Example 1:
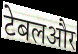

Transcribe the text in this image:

टेबलऔर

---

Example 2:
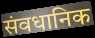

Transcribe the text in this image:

संवधानिक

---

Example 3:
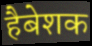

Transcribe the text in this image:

हैबेशक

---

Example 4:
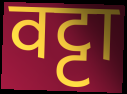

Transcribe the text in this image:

वट्टा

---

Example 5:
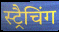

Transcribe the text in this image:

स्ट्रैचिंग